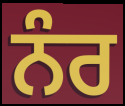
ਨੰਰ